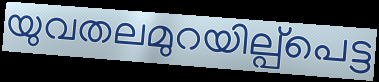
യുവതലമുറയില്പ്പെട്ട